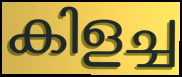
കിളച്ച